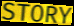
STORY